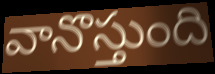
వానొస్తుంది